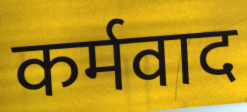
कर्मवाद